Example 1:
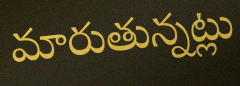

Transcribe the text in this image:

మారుతున్నట్లు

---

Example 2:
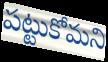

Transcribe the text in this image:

పట్టుకోమని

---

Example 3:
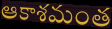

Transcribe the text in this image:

ఆకాశమంత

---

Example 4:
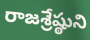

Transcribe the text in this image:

రాజశ్రేష్ఠుని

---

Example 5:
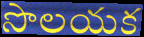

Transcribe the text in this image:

సొలయక